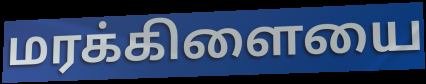
மரக்கிளையை